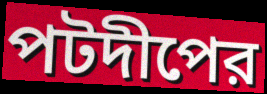
পটদীপের